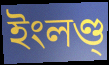
ইংলণ্ড্